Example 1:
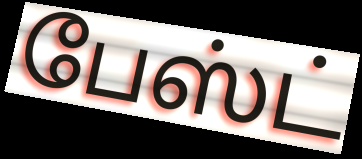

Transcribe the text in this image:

பேஸ்ட்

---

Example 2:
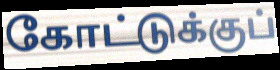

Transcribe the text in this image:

கோட்டுக்குப்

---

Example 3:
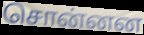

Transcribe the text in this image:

சொன்னன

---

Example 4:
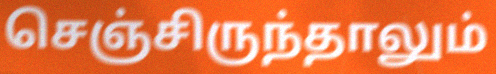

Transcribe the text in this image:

செஞ்சிருந்தாலும்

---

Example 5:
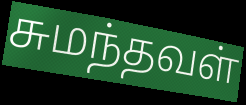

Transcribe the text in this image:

சுமந்தவள்